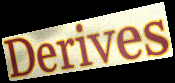
Derives